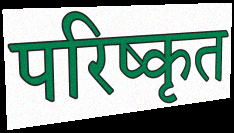
परिष्कृत